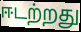
ஈடற்றது